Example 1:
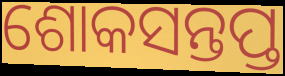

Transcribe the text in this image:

ଶୋକସନ୍ତପ୍ତ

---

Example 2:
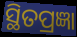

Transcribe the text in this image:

ସ୍ଥିତପ୍ରଜ୍ଞା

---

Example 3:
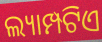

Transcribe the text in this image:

ଲ୍ୟାମ୍ପଟିଏ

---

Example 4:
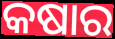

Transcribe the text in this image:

କଷାର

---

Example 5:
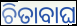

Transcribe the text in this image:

ଚିତାବାଘ